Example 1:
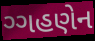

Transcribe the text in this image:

ગ્ગહણેન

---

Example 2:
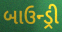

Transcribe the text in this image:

બાઉન્ડ્રી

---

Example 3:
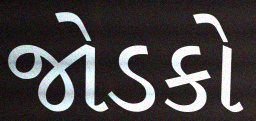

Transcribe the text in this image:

જોડકો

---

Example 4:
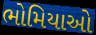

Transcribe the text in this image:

ભોમિયાઓ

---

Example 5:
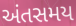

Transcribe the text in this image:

અંતસમય